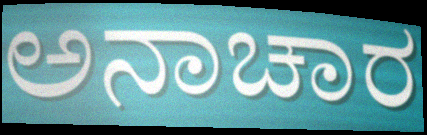
ಅನಾಚಾರ